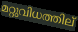
മറ്റുവിധത്തില്